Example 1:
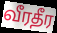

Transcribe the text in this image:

வீரதீர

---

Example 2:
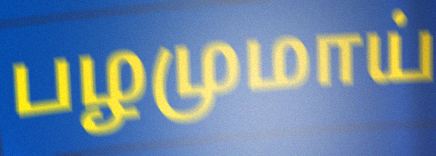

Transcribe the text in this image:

பழமுமாய்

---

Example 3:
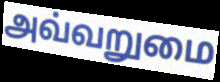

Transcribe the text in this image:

அவ்வறுமை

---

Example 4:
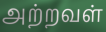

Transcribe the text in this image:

அற்றவள்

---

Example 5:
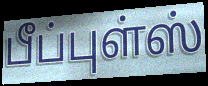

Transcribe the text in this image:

பீப்புள்ஸ்